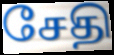
சேதி